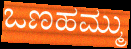
ಒಣಹಮ್ಮು